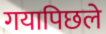
गयापिछले